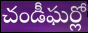
చండీఘర్లో